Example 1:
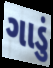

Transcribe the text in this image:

ગાડું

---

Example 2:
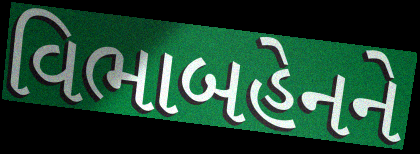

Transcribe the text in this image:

વિભાબહેનને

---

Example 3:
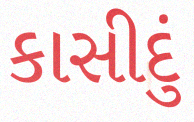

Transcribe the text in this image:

કાસીદું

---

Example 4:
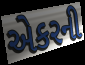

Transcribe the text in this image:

એકરની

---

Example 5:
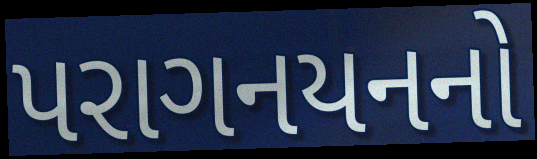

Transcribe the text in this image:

પરાગનયનનો